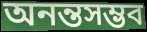
অনন্তসম্ভব